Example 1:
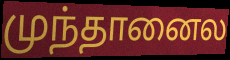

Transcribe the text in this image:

முந்தானைல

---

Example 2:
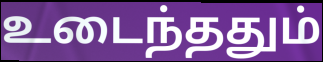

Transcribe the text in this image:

உடைந்ததும்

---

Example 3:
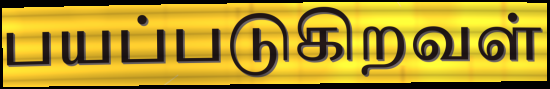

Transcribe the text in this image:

பயப்படுகிறவள்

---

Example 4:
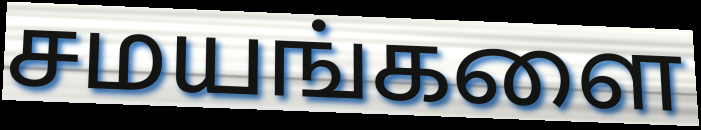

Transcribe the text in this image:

சமயங்களை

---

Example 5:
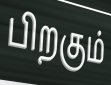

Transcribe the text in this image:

பிறகும்